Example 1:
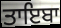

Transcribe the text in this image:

ਤਾਇਬਾ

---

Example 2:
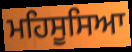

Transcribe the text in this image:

ਮਹਿਸੂਸਿਆ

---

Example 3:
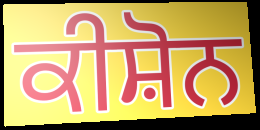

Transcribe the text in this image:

ਕੀਸ਼ੋਨ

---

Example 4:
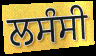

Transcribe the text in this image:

ਲਸੰਸੀ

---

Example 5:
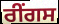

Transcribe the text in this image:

ਰੀਂਗਸ